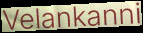
Velankanni